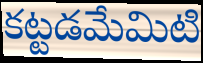
కట్టడమేమిటి